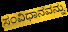
ಸಂವಿಧಾನವನ್ನು